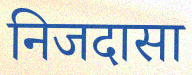
निजदासा